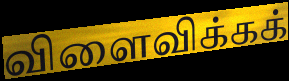
விளைவிக்கக்